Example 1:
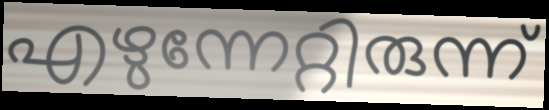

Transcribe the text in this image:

എഴുന്നേറ്റിരുന്ന്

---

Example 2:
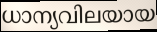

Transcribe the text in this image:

ധാന്യവിലയായ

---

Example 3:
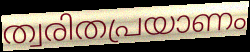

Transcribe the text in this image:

ത്വരിതപ്രയാണം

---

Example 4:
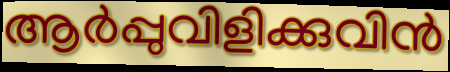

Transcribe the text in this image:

ആർപ്പുവിളിക്കുവിൻ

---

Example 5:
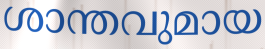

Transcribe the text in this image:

ശാന്തവുമായ